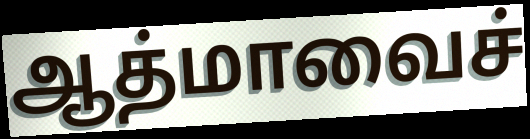
ஆத்மாவைச்